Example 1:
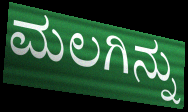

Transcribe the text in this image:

ಮಲಗಿನ್ನು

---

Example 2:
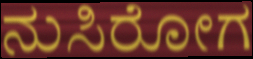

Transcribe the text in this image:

ನುಸಿರೋಗ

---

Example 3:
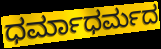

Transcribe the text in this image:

ಧರ್ಮಾಧರ್ಮದ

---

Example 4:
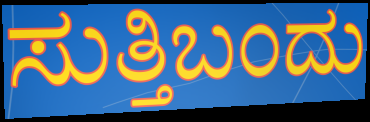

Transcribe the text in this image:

ಸುತ್ತಿಬಂದು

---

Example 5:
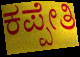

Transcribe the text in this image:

ಕಪ್ಪೇತಿ